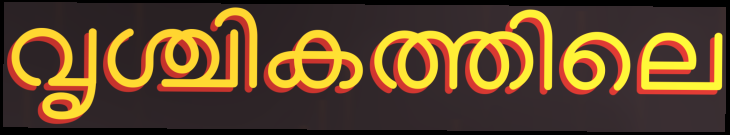
വൃശ്ചികത്തിലെ